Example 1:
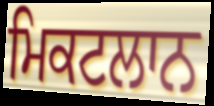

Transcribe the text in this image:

ਮਿਕਟਲਾਨ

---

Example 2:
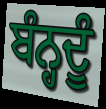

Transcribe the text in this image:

ਬੰਨ੍ਹਦੂੰ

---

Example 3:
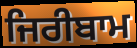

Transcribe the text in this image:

ਜਿਰੀਬਾਮ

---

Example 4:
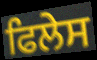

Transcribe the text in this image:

ਫਿਲੇਸ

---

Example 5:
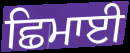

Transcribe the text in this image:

ਛਿਮਾਈ